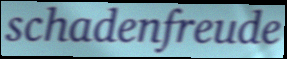
schadenfreude